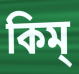
কিম্